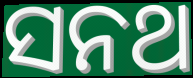
ସନଥ